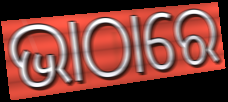
ଭାଠାରେ